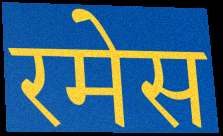
रमेस